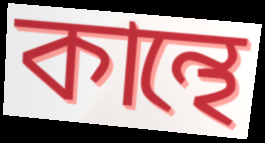
কান্থে